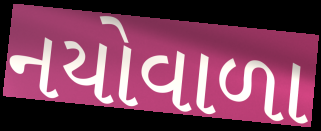
નયોવાળા